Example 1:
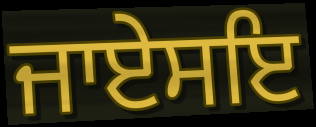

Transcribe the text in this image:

ਜਾਏਸਇ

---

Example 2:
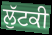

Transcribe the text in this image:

ਲੁੱਟਕੀ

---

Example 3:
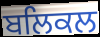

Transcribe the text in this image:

ਬਲਿਕਲ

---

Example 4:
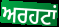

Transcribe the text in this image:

ਅਰਹਟਾਂ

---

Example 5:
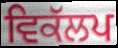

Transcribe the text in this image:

ਵਿਕੱਲਪ